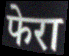
फेरा